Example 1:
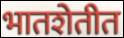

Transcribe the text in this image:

भातशेतीत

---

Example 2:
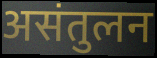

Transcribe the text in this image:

असंतुलन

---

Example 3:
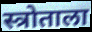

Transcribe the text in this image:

स्त्रोताला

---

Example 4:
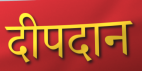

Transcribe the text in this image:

दीपदान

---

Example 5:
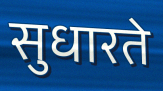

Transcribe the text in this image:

सुधारते